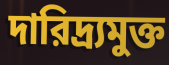
দারিদ্র্যমুক্ত